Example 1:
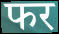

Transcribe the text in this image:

फर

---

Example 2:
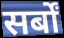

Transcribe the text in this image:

सर्बों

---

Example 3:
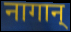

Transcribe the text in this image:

नागान्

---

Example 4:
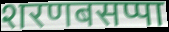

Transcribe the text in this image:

शरणबसप्पा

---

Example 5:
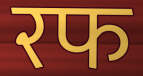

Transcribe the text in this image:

रफ